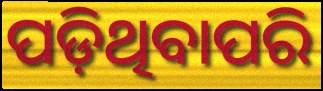
ପଡ଼ିଥିବାପରି